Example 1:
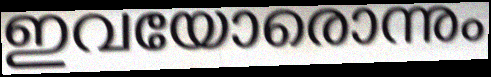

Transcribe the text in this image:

ഇവയോരൊന്നും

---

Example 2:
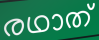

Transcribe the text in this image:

രഥാത്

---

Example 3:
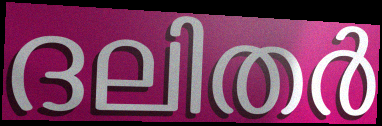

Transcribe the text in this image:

ദലിതർ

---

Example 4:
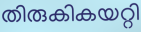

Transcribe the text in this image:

തിരുകികയറ്റി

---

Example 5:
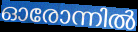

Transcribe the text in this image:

ഓരോന്നിൽ